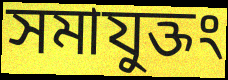
সমাযুক্তং